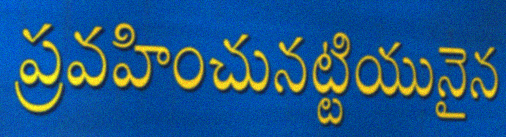
ప్రవహించునట్టియునైన